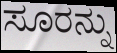
ಸೂರನ್ನು